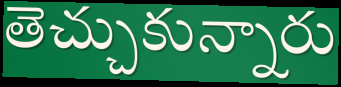
తెచ్చుకున్నారు